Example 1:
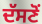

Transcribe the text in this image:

ਦੱਸਣੋਂ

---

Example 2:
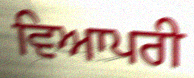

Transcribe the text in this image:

ਵਿਆਪਰੀ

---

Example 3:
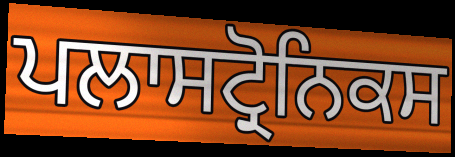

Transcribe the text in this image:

ਪਲਾਸਟ੍ਰੋਨਿਕਸ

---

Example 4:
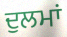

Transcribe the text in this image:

ਦੁਲਮਾਂ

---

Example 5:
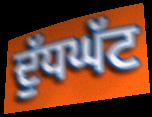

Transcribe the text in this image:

ਦੁੱਧਘੱਟ